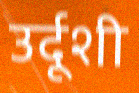
उर्दूशी